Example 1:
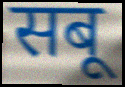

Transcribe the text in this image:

सबू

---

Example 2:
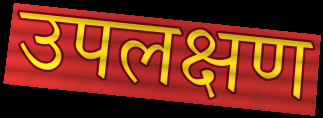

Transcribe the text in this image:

उपलक्षण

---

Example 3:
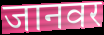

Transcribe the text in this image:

जानवर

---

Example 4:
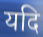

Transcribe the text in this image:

यदि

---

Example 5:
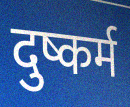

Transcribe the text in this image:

दुष्कर्म